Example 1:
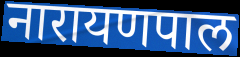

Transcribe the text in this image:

नारायणपाल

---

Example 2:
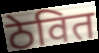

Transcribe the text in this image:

ठेवित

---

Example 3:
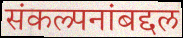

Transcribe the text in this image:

संकल्पनांबद्दल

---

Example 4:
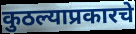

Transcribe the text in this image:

कुठल्याप्रकारचे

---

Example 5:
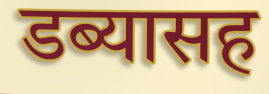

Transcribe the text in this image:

डब्यासह